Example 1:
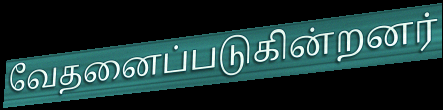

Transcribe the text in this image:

வேதனைப்படுகின்றனர்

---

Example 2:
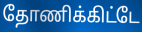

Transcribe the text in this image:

தோணிக்கிட்டே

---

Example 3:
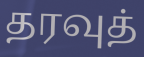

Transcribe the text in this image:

தரவுத்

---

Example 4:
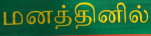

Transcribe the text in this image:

மனத்தினில்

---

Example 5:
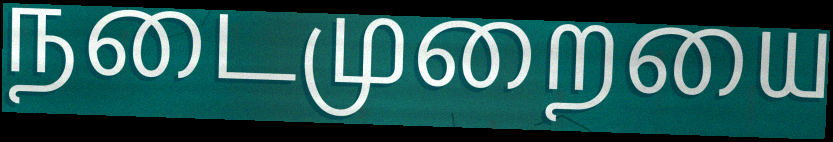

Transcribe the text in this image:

நடைமுறையை